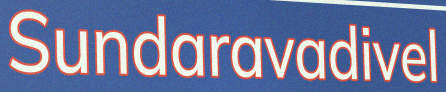
Sundaravadivel